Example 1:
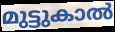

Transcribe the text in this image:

മുട്ടുകാൽ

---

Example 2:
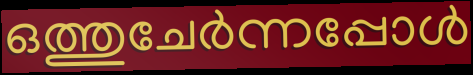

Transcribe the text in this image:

ഒത്തുചേർന്നപ്പോൾ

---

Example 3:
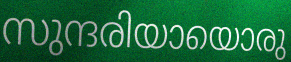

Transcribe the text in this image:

സുന്ദരിയായൊരു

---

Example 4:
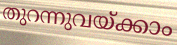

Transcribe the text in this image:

തുറന്നുവയ്ക്കാം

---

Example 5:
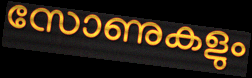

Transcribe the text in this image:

സോണുകളും